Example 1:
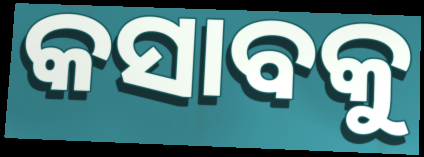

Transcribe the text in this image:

କସାବକୁ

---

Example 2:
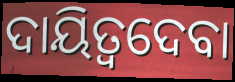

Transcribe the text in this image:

ଦାୟିତ୍ୱଦେବା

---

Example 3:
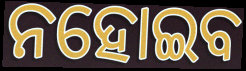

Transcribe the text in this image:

ନହୋଇବ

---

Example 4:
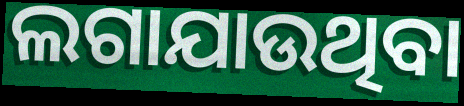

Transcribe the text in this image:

ଲଗାଯାଉଥିବା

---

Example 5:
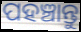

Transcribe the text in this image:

ପହଞ୍ଚାନ୍ତୁ